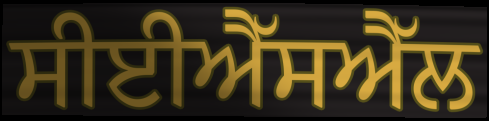
ਸੀਈਐੱਸਐੱਲ